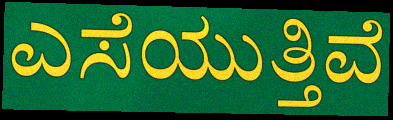
ಎಸೆಯುತ್ತಿವೆ